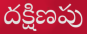
దక్షిణపు